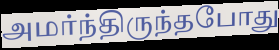
அமர்ந்திருந்தபோது